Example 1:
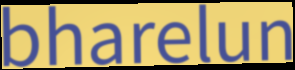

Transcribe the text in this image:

bharelun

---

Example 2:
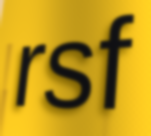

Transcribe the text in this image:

rsf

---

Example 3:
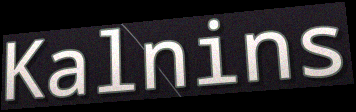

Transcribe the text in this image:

Kalnins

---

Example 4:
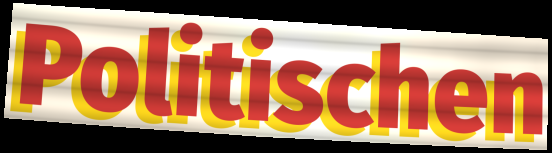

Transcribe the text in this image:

Politischen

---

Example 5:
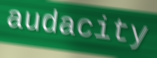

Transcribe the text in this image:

audacity